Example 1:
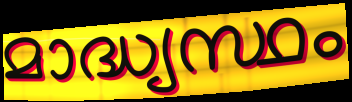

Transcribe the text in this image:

മാദ്ധ്യസ്ഥം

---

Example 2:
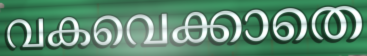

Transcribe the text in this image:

വകവെക്കാതെ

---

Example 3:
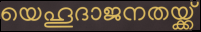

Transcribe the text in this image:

യെഹൂദാജനതയ്ക്ക്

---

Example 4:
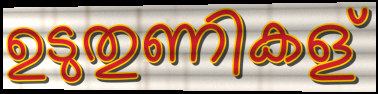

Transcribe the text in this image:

ഉടുതുണികള്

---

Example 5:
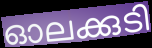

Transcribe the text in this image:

ഓലക്കുടി